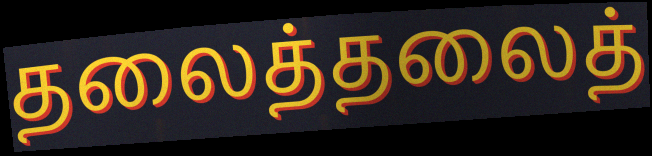
தலைத்தலைத்